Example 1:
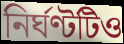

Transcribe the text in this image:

নির্ঘণ্টটিও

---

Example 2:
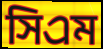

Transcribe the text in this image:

সিএম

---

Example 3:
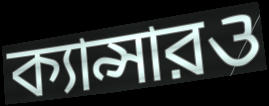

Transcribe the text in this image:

ক্যান্সারও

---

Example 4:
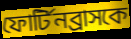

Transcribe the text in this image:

ফোর্টিনব্রাসকে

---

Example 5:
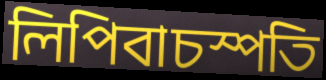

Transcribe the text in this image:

লিপিবাচস্পতি